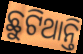
ଛୁଟିଥାନ୍ତି